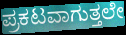
ಪ್ರಕಟವಾಗುತ್ತಲೇ